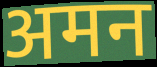
अमन